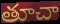
తూచా